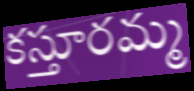
కస్తూరమ్మ